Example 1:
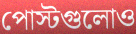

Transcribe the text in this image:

পোস্টগুলোও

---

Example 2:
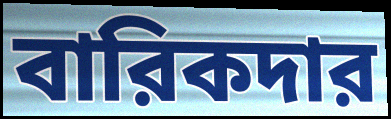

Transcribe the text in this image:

বারিকদার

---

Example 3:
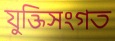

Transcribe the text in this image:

যুক্তিসংগত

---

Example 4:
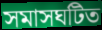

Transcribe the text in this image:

সমাসঘটিত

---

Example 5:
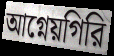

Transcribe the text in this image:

আগ্নেয়গিরি